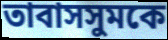
তাবাসসুমকে